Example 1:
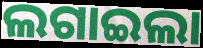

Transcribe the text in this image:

ଲଗାଇଲା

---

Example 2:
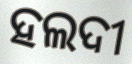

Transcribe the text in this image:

ହଲଦୀ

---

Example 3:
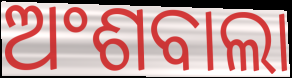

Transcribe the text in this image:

ଅଂଶବାଲା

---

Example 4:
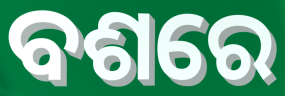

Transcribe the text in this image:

ବଶରେ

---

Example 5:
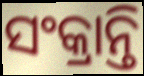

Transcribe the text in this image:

ସଂକ୍ରାନ୍ତି